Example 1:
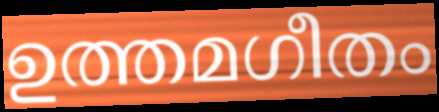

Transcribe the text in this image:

ഉത്തമഗീതം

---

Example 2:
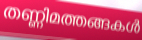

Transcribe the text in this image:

തണ്ണിമത്തങ്ങകൾ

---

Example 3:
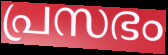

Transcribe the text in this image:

പ്രസഭം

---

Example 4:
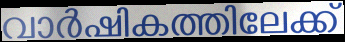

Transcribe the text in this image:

വാർഷികത്തിലേക്ക്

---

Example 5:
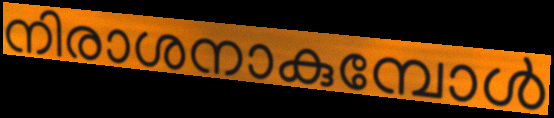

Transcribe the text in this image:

നിരാശനാകുമ്പോൾ